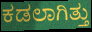
ಕಡಲಾಗಿತ್ತು